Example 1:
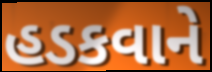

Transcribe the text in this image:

હડકવાને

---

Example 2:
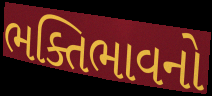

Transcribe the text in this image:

ભક્તિભાવનો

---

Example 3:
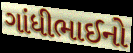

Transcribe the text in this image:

ગાંધીભાઈનો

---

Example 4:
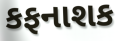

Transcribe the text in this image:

કફનાશક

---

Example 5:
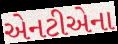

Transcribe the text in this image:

એનટીએના